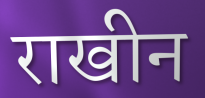
राखीन